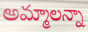
అమ్మాలన్నా